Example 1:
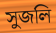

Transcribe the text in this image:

সুজলি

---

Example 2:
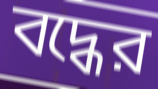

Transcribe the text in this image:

বদ্ধের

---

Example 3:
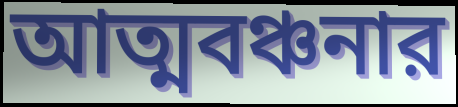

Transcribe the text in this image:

আত্মবঞ্চনার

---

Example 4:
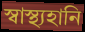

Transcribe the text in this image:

স্বাস্থ্যহানি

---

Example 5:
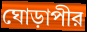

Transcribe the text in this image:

ঘোড়াপীর